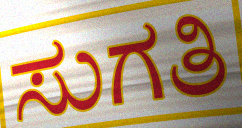
ಸುಗತಿ